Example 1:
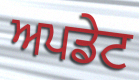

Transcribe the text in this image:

ਅਪਡੇਟ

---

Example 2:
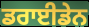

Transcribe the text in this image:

ਡਰਾਈਡੇਨ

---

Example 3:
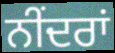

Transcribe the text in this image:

ਨੀਂਦਰਾਂ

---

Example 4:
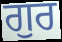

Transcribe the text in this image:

ਗੁਰ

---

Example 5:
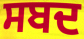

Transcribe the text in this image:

ਸਬਦ